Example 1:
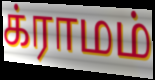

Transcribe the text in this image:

க்ராமம்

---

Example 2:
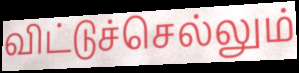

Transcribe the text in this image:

விட்டுச்செல்லும்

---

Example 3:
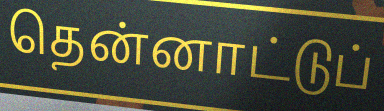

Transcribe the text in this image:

தென்னாட்டுப்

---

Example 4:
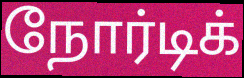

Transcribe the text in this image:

நோர்டிக்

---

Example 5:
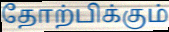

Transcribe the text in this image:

தோற்பிக்கும்